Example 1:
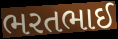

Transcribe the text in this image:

ભરતભાઈ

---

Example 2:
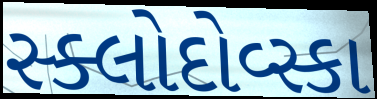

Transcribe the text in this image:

સ્ક્લોદોવ્સ્કા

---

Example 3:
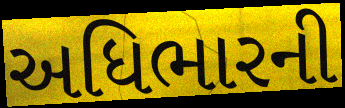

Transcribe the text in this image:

અધિભારની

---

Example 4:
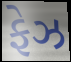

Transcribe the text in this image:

ફેઝ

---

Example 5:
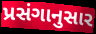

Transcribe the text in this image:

પ્રસંગાનુસાર